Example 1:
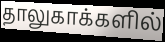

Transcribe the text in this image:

தாலுகாக்களில்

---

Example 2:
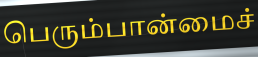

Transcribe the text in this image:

பெரும்பான்மைச்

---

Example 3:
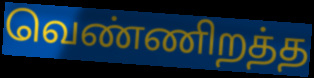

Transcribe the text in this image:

வெண்ணிறத்த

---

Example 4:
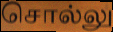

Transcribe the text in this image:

சொல்லு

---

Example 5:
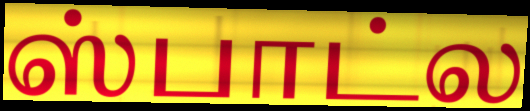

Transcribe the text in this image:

ஸ்பாட்ல